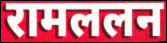
रामललन